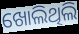
ଖୋଲିଥିଲି